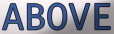
ABOVE